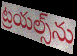
ట్రయల్స్‌ను